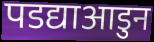
पडद्याआडुन